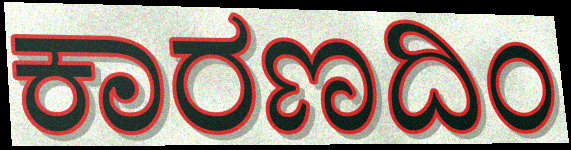
ಕಾರಣದಿಂ